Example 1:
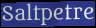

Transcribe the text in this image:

Saltpetre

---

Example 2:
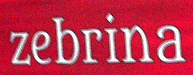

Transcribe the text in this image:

zebrina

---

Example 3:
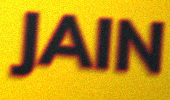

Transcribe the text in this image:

JAIN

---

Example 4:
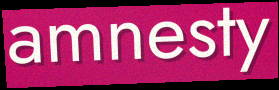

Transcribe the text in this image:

amnesty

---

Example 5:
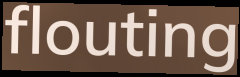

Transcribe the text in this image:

flouting